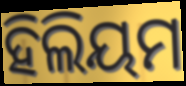
ହିଲିୟମ